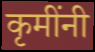
कृमींनी